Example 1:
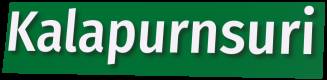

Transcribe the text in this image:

Kalapurnsuri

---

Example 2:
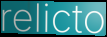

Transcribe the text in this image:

relicto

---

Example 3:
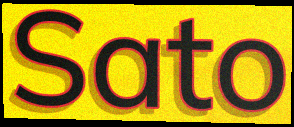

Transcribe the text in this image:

Sato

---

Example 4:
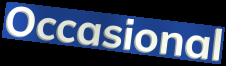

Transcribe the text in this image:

Occasional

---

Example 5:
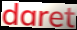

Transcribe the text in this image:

daret